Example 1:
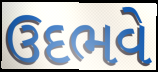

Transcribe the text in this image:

ઉદભવે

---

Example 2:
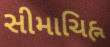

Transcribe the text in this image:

સીમાચિહ્ન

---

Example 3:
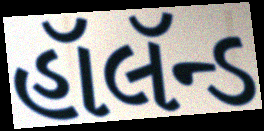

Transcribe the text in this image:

હૉલૅન્ડ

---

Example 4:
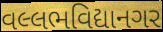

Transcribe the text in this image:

વલ્લભવિદ્યાનગર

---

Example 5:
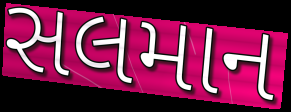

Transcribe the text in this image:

સલમાન